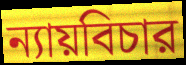
ন্যায়বিচার